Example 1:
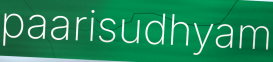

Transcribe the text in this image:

paarisudhyam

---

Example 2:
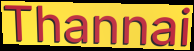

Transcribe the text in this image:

Thannai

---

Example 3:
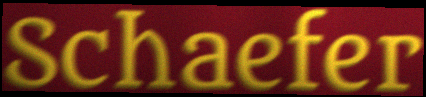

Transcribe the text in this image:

Schaefer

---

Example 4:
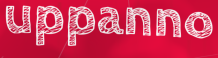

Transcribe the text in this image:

uppanno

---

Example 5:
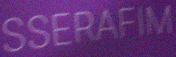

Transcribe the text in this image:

SSERAFIM